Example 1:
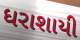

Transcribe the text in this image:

ધરાશાયી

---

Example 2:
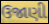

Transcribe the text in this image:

ઉજાણી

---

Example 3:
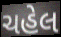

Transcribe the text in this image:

ચહેલ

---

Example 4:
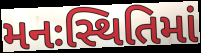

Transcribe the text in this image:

મનઃસ્થિતિમાં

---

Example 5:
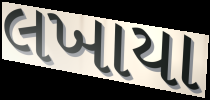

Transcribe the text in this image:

લખાયા